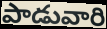
పాడువారి